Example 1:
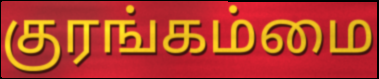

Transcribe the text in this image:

குரங்கம்மை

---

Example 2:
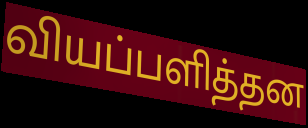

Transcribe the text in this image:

வியப்பளித்தன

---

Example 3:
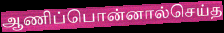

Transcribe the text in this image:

ஆணிப்பொன்னால்செய்த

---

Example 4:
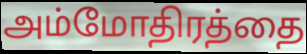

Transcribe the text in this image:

அம்மோதிரத்தை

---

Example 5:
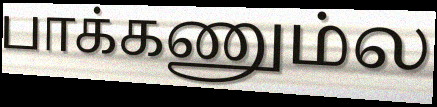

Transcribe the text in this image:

பாக்கணும்ல